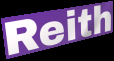
Reith